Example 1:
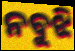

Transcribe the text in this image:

ନବୁଝି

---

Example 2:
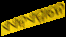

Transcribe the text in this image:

ଏଏନ୍ଏମ୍ମାନେ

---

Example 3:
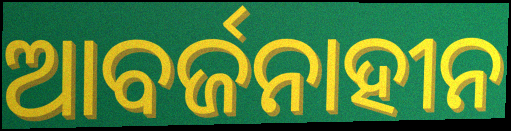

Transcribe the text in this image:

ଆବର୍ଜନାହୀନ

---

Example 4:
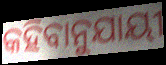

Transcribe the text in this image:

କହିବାନୁଯାୟୀ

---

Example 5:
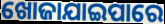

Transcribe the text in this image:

ଖୋଜାଯାଇପାରେ